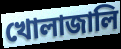
খোলাজালি